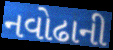
નવોઢાની